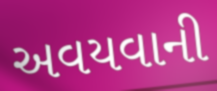
અવયવાની